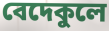
বেদেকুলে